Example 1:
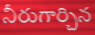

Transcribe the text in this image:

నీరుగార్చిన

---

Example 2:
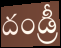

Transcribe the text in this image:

దండ్రీ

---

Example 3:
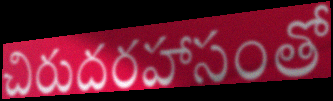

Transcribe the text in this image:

చిరుదరహాసంతో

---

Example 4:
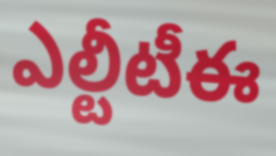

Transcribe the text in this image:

ఎల్టీటీఈ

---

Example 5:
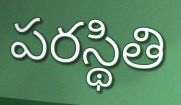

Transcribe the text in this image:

పరస్థితి